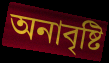
অনাবৃষ্টি